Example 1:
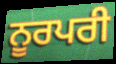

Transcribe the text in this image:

ਨੂਰਪਰੀ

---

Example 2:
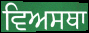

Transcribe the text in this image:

ਵਿਅਸਥਾ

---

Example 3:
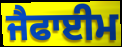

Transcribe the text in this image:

ਜੈਫਾਈਮ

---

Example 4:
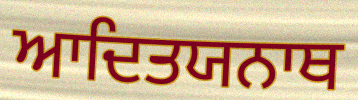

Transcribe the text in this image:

ਆਦਿਤਯਨਾਥ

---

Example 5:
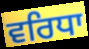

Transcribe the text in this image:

ਵਰਿਧਾ